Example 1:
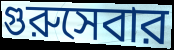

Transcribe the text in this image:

গুরুসেবার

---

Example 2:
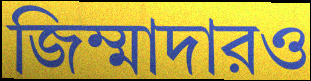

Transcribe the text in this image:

জিম্মাদারও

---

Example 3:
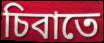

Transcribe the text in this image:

চিবাতে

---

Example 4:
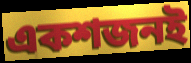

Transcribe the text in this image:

একশজনই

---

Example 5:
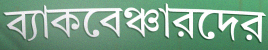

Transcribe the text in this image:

ব্যাকবেঞ্চারদের